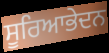
ਸੂਰਿਆਭੇਦਨ